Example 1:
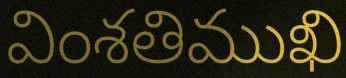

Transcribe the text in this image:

వింశతిముఖి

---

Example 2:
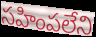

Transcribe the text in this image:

సహింపలేని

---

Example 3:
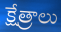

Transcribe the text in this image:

క్షేత్రాలు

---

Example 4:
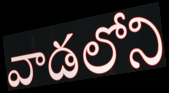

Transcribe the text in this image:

వాడలోని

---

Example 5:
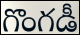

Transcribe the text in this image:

గొంగడీ